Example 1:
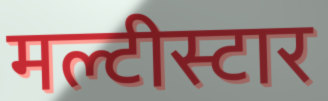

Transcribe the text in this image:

मल्टीस्टार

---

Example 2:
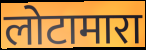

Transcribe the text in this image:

लोटामारा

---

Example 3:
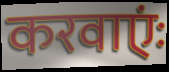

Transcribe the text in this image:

करवाएंः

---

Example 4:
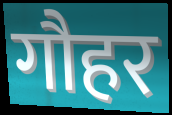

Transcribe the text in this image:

गौहर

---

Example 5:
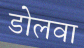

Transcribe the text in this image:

डोलवा